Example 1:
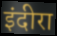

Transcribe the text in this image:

इंदीरा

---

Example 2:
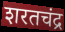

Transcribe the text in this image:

शरतचंद्र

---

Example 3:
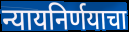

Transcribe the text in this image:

न्यायनिर्णयाचा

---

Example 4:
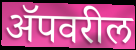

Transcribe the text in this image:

ॲपवरील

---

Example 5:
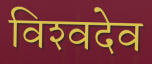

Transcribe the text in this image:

विश्वदेव